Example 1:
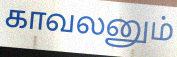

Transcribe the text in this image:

காவலனும்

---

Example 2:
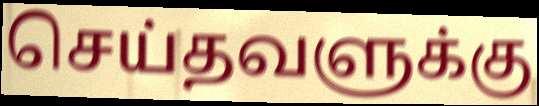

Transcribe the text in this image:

செய்தவளுக்கு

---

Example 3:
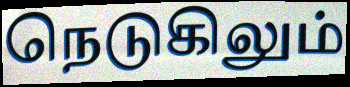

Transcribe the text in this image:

நெடுகிலும்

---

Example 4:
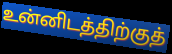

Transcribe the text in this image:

உன்னிடத்திற்குத்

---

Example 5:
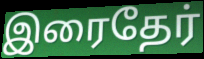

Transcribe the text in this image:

இரைதேர்